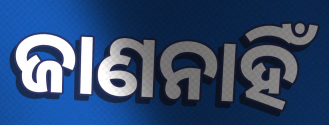
ଜାଣନାହିଁ